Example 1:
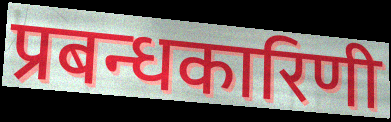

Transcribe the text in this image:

प्रबन्धकारिणी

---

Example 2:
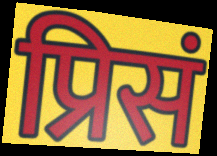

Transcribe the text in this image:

प्रिसं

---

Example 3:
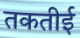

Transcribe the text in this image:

तकतीई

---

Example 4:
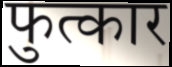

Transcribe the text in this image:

फुत्कार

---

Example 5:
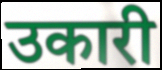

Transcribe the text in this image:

उकारी